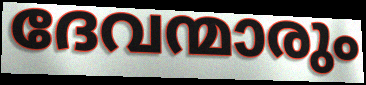
ദേവന്മാരും